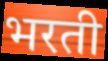
भरती